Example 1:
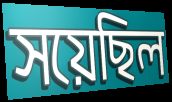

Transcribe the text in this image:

সয়েছিল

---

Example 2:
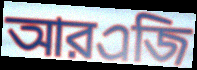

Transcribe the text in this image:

আরএজি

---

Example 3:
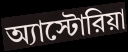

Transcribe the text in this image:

অ্যাস্টোরিয়া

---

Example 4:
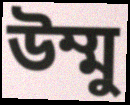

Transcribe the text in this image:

উম্মু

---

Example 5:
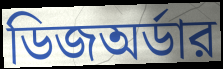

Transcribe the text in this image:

ডিজঅর্ডার